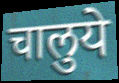
चालुये